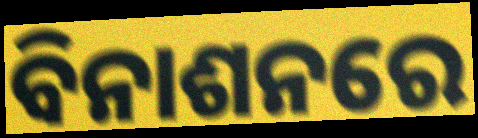
ବିନାଶନରେ